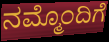
ನಮ್ಮೊಂದಿಗೆ